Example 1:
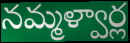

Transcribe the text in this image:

నమ్మళ్వార్ల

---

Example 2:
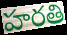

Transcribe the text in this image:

హరతి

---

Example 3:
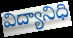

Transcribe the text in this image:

విద్యానిధి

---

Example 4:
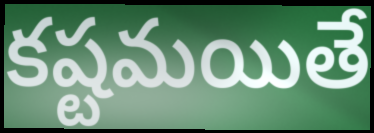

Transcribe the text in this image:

కష్టమయితే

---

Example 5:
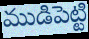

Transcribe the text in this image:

ముడిపెట్టి